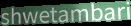
shwetambari